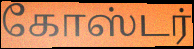
கோஸ்டர்